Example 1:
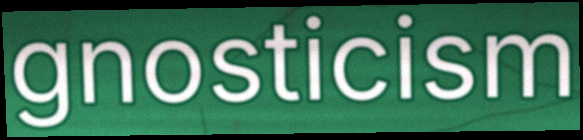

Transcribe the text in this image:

gnosticism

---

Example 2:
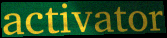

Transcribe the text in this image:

activator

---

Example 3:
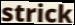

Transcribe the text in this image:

strick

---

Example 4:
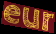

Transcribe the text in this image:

eur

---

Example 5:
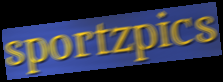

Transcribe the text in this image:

sportzpics